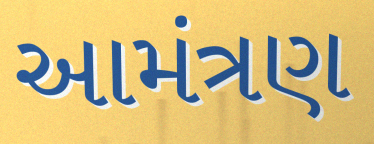
આમંત્રણ